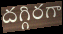
దగ్గిరగా